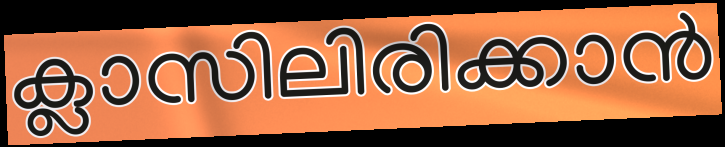
ക്ലാസിലിരിക്കാൻ